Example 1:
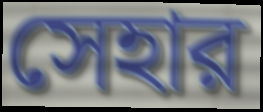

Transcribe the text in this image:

সেহার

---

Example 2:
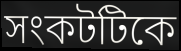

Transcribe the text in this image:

সংকটটিকে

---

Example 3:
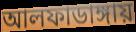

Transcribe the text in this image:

আলফাডাঙ্গায়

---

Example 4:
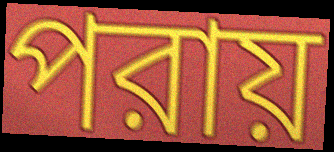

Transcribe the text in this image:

পরায়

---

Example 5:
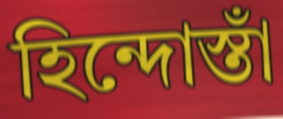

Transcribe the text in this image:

হিন্দোস্তাঁ